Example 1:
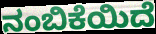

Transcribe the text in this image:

ನಂಬಿಕೆಯಿದೆ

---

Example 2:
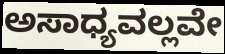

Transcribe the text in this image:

ಅಸಾಧ್ಯವಲ್ಲವೇ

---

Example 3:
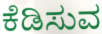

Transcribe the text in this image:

ಕೆಡಿಸುವ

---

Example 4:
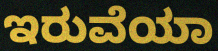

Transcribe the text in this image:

ಇರುವೆಯಾ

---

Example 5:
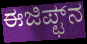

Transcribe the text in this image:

ಈಜಿಪ್ಟ್‌ನ